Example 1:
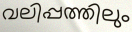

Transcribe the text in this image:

വലിപ്പത്തിലും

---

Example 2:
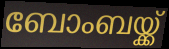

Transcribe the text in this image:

ബോംബയ്ക്ക്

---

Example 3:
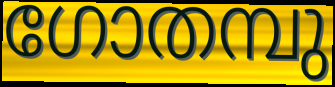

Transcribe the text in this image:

ഗോതമ്പു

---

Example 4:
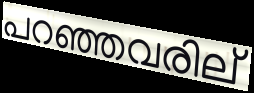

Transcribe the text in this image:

പറഞ്ഞവരില്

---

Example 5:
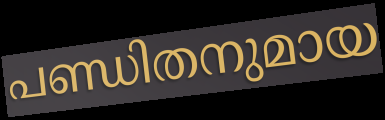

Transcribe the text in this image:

പണ്ഡിതനുമായ